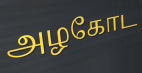
அழகோட